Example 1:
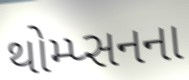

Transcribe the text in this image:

થોમ્પ્સનના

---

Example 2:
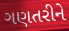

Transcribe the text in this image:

ગણતરીને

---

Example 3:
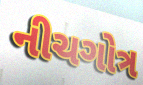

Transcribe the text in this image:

નીચગોત્ર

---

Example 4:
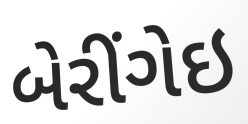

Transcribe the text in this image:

બેરીંગેઇ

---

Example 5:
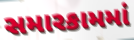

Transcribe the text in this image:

સમારકામમાં